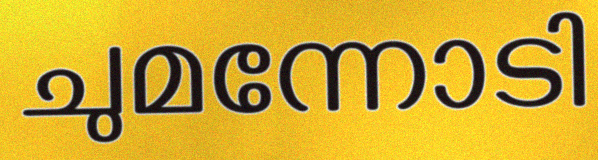
ചുമന്നോടി